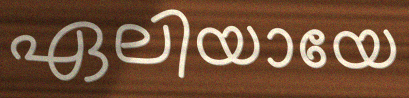
ഏലിയായേ